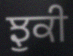
ਝੁਕੀ